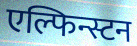
एल्फिन्स्टन